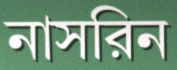
নাসরিন